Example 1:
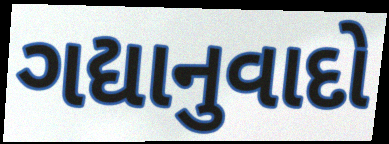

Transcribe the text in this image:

ગદ્યાનુવાદો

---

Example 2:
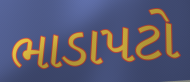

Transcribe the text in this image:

ભાડાપટો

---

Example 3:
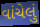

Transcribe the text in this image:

વાંચેલું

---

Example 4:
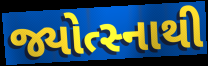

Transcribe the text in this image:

જ્યોત્સ્નાથી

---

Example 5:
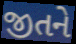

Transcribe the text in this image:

જીતને